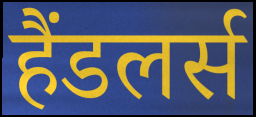
हैंडलर्स